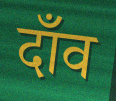
दाँव